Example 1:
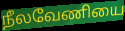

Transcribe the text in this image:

நீலவேணியை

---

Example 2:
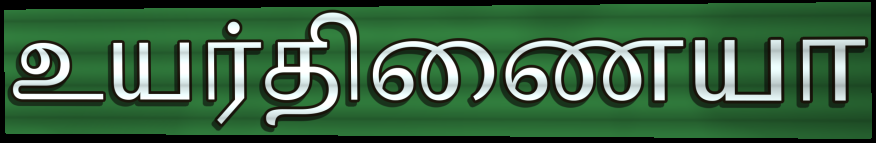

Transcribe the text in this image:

உயர்திணையா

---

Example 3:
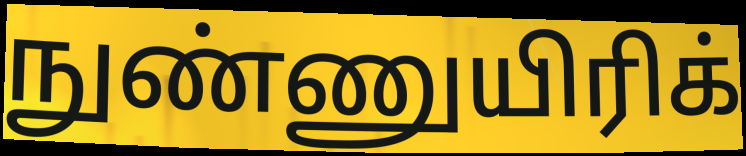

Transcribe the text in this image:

நுண்ணுயிரிக்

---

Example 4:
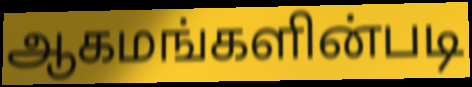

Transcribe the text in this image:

ஆகமங்களின்படி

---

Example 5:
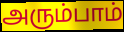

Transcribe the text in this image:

அரும்பாம்